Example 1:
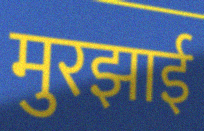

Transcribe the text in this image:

मुरझाई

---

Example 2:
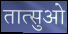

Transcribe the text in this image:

तात्सुओ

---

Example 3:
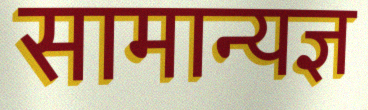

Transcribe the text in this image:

सामान्यज्ञ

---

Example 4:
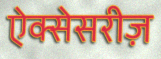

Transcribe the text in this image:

ऐक्सेसरीज़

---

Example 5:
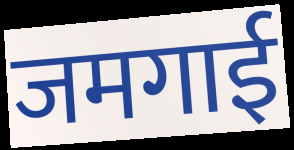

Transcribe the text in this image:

जमगाई